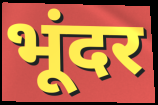
भूंदर